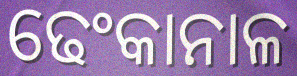
ଢେଂକାନାଳ